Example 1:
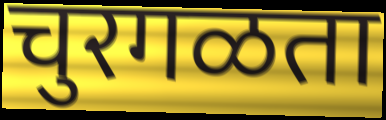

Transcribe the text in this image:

चुरगळता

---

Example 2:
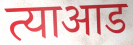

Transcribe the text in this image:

त्याआड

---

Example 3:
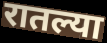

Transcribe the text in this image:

रातल्या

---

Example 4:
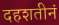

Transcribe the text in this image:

दहशतीनं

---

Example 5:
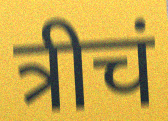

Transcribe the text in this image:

त्रीचं